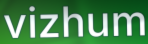
vizhum